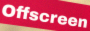
Offscreen